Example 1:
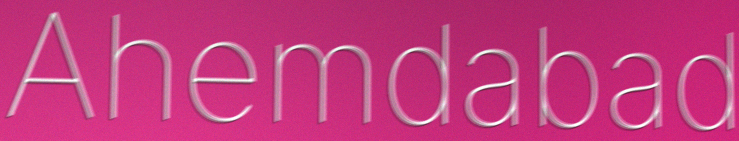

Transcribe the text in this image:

Ahemdabad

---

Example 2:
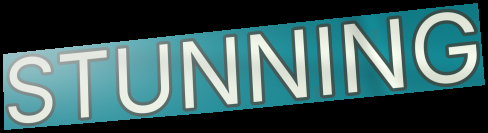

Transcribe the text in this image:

STUNNING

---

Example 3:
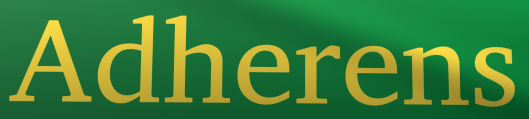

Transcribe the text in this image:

Adherens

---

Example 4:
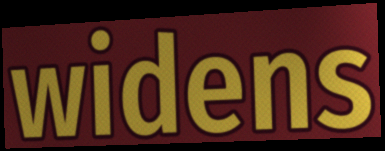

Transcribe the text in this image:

widens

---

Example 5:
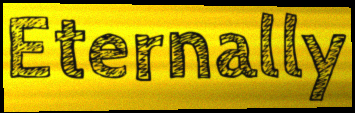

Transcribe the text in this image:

Eternally